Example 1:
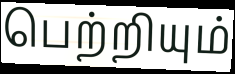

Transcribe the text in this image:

பெற்றியும்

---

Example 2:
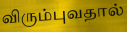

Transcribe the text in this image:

விரும்புவதால்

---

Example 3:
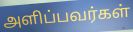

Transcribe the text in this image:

அளிப்பவர்கள்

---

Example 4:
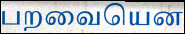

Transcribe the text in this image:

பறவையென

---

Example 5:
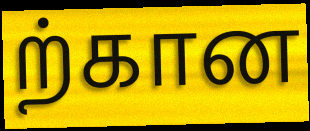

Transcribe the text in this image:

ற்கான